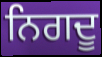
ਨਿਗਦੂ